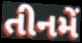
તીનમેં